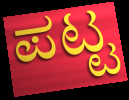
ಪಟ್ಟ